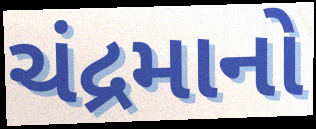
ચંદ્રમાનો